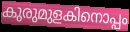
കുരുമുളകിനൊപ്പം